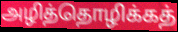
அழித்தொழிக்கத்